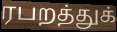
ரபறத்துக்